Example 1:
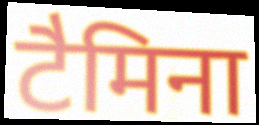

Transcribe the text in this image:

टैमिना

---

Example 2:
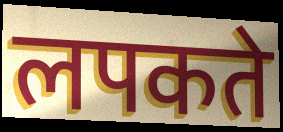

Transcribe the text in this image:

लपकते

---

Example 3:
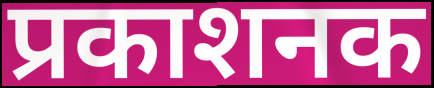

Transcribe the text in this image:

प्रकाशनक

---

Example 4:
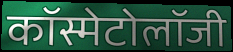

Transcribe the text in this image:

कॉस्मेटोलॉजी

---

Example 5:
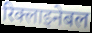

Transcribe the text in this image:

रिक्लाइनेबल